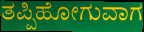
ತಪ್ಪಿಹೋಗುವಾಗ